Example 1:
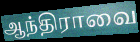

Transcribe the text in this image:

ஆந்திராவை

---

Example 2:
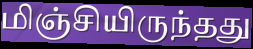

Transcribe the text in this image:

மிஞ்சியிருந்தது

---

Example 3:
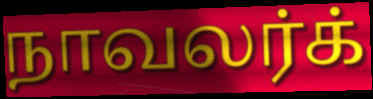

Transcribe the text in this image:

நாவலர்க்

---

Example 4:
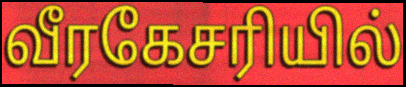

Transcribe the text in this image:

வீரகேசரியில்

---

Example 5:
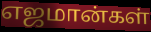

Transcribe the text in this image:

எஜமான்கள்